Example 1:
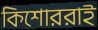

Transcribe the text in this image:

কিশোররাই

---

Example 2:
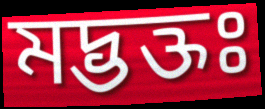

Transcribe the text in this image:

মদ্ভক্তঃ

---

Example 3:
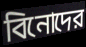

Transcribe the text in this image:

বিনোদের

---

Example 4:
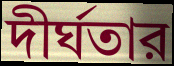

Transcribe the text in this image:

দীর্ঘতার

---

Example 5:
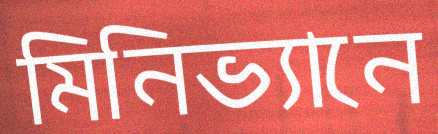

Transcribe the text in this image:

মিনিভ্যানে